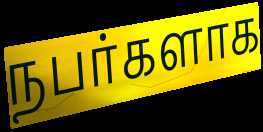
நபர்களாக